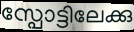
സ്പോട്ടിലേക്കു